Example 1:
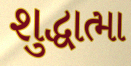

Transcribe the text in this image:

શુદ્ધાત્મા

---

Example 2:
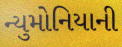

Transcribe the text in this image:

ન્યુમોનિયાની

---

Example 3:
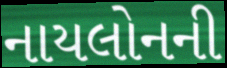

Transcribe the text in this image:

નાયલોનની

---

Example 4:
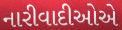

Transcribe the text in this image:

નારીવાદીઓએ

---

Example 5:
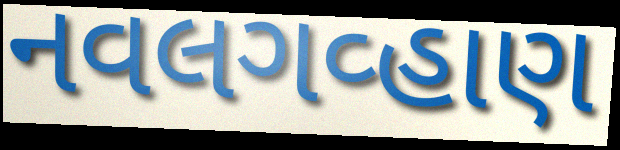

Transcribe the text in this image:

નવલગવ્હાણ